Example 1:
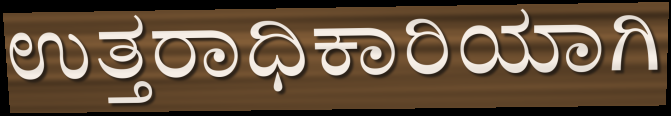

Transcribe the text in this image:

ಉತ್ತರಾಧಿಕಾರಿಯಾಗಿ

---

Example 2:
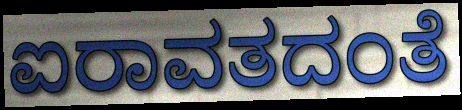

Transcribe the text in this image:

ಐರಾವತದಂತೆ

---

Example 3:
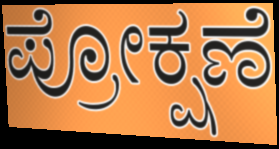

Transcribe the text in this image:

ಪ್ರೋಕ್ಷಣೆ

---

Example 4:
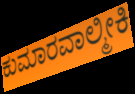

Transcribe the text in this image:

ಕುಮಾರವಾಲ್ಮೀಕಿ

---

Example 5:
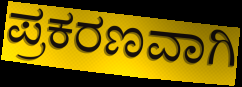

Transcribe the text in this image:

ಪ್ರಕರಣವಾಗಿ